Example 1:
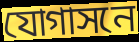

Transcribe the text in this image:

যোগাসনে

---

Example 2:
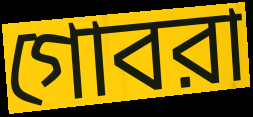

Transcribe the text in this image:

গোবরা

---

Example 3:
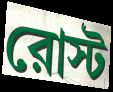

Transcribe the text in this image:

রোস্ট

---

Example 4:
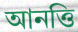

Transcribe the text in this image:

আনত্তি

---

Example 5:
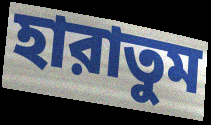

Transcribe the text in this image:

হারাতুম